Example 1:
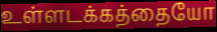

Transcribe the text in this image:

உள்ளடக்கத்தையோ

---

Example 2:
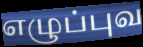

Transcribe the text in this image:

எழுப்புவ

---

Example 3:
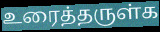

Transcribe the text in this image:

உரைத்தருள்க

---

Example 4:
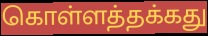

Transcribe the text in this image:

கொள்ளத்தக்கது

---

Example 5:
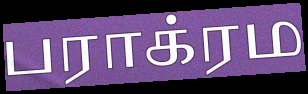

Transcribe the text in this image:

பராக்ரம